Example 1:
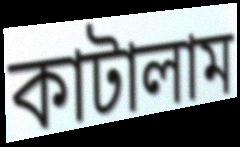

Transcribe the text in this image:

কাটালাম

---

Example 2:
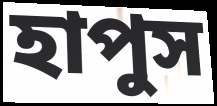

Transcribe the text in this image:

হাপুস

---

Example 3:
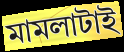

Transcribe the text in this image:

মামলাটাই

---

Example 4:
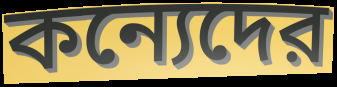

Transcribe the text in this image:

কন্যেদের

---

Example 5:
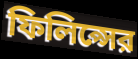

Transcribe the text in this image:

ফিলিপ্সের